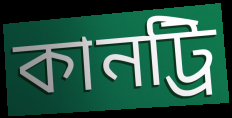
কানট্রি